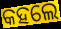
କହଲେ